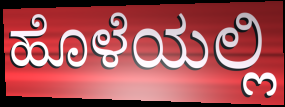
ಹೊಳೆಯಲ್ಲಿ